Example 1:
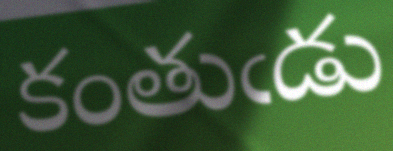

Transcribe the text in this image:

కంతుఁడు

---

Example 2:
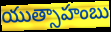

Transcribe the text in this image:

యుత్సాహంబు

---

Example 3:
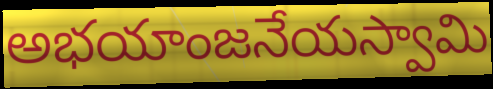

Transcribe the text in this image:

అభయాంజనేయస్వామి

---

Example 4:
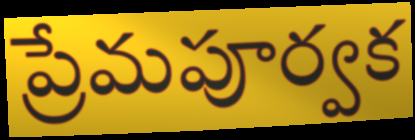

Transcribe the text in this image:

ప్రేమపూర్వక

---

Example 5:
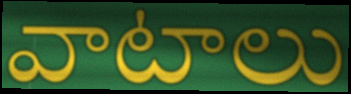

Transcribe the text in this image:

వాటాలు